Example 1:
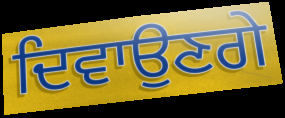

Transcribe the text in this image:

ਦਿਵਾਉਣਗੇ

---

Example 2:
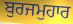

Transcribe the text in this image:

ਬੁਰਜਮੁਹਾਰ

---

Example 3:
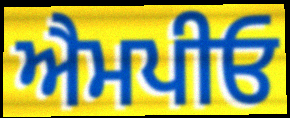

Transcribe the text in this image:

ਐਮਪੀਓ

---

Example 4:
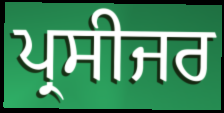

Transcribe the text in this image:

ਪ੍ਰਸੀਜਰ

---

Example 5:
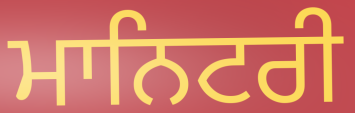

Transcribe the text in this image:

ਮਾਨਿਟਰੀ